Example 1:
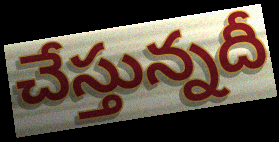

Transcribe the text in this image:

చేస్తున్నదీ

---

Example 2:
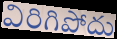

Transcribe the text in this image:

విరిగిపోదు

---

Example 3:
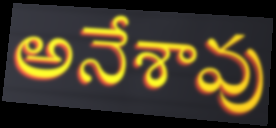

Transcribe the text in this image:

అనేశావు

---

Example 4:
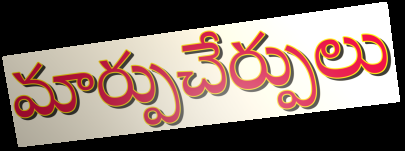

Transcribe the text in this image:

మార్పుచేర్పులు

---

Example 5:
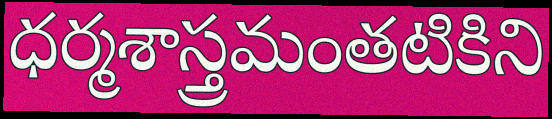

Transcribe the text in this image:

ధర్మశాస్త్రమంతటికిని